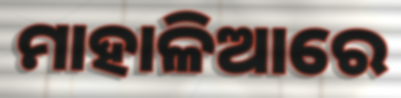
ମାହାଳିଆରେ